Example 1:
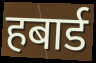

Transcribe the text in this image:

हबार्ड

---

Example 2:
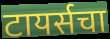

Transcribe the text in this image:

टायर्सचा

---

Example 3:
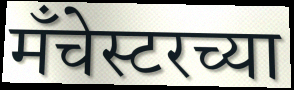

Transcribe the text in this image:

मँचेस्टरच्या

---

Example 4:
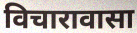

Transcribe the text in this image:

विचारावासा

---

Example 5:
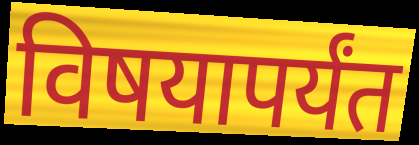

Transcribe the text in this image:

विषयापर्यंत